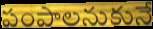
పంపాలనుకునే